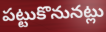
పట్టుకొనునట్లు